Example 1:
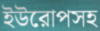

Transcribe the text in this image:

ইউরোপসহ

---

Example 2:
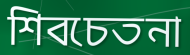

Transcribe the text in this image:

শিবচেতনা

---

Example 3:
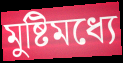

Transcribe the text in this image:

মুষ্টিমধ্যে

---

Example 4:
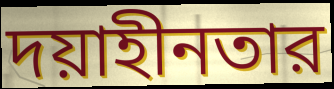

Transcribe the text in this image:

দয়াহীনতার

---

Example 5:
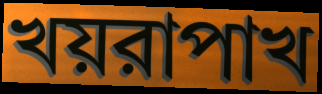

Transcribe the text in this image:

খয়রাপাখ